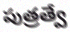
పుత్రత్వే